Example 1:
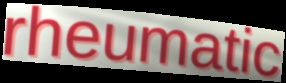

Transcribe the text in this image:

rheumatic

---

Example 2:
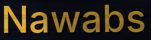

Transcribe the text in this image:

Nawabs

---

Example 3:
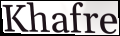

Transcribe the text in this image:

Khafre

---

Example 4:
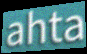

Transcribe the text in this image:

ahta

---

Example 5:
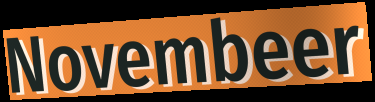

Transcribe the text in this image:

Novembeer